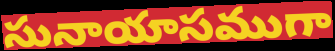
సునాయాసముగా